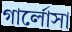
গার্লোসা